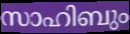
സാഹിബും